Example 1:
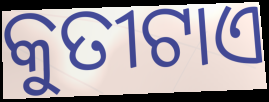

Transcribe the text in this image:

କୁତୀଟାଏ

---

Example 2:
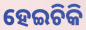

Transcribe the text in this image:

ହେଇଚିକି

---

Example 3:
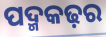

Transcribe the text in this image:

ପଦ୍ମକଢ଼ର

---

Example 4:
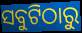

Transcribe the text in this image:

ସବୁଟିଠାରୁ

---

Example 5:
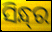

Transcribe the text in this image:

ସିନ୍ଧ୍‌ର